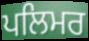
ਪਲਿਮਰ